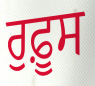
ਰੁਫ਼ੂਸ